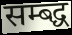
सम्ब्द्ध